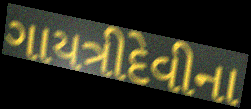
ગાયત્રીદેવીના